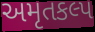
અમૃતકલ્પ